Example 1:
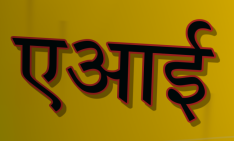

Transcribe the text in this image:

एआई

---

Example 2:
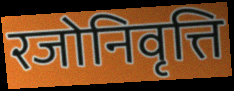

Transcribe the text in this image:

रजोनिवृत्ति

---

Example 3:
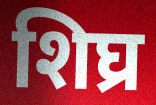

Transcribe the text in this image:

शिघ्र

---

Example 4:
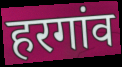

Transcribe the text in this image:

हरगांव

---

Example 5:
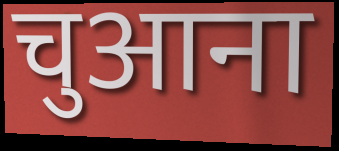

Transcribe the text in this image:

चुआना